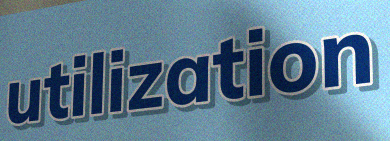
utilization